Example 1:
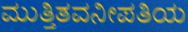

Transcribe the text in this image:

ಮುತ್ತಿತವನೀಪತಿಯ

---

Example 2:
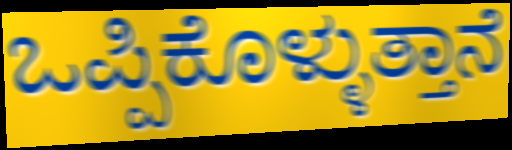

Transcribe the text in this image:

ಒಪ್ಪಿಕೊಳ್ಳುತ್ತಾನೆ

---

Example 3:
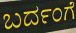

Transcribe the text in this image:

ಬರ್ದಂಗೆ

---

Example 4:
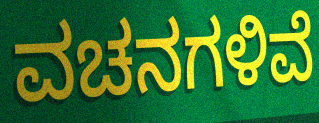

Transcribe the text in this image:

ವಚನಗಳಿವೆ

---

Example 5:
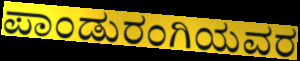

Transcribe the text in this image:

ಪಾಂಡುರಂಗಿಯವರ